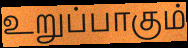
உறுப்பாகும்